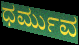
ಧರ್ಮುವ